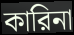
কারিনা